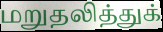
மறுதலித்துக்